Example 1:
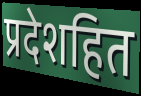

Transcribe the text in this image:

प्रदेशहित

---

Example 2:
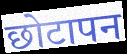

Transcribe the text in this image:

छोटापन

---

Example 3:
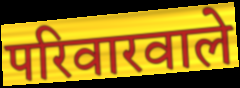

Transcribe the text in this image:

परिवारवाले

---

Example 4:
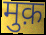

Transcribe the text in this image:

मुक़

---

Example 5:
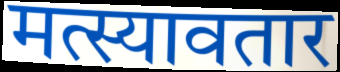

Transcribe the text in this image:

मत्स्यावतार